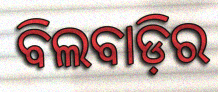
ବିଲବାଡ଼ିର